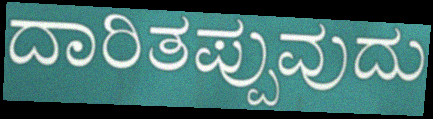
ದಾರಿತಪ್ಪುವುದು